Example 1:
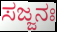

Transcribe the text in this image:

ಸಜ್ಜನಃ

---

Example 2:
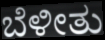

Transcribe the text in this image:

ಬೆಳೀತು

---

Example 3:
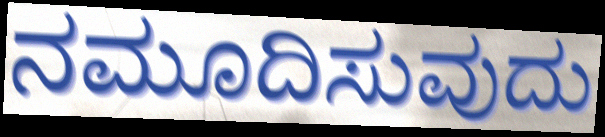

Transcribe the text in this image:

ನಮೂದಿಸುವುದು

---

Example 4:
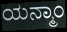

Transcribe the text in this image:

ಯನ್ಮಾಂ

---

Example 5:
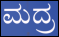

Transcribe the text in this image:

ಮದ್ರ